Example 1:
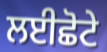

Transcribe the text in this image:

ਲਈਛੋਟੇ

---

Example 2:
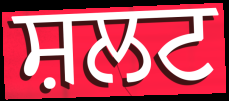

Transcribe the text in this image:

ਸ਼ਲਟ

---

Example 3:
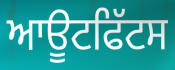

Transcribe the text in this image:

ਆਊਟਫਿੱਟਸ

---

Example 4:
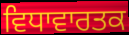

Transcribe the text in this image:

ਵਿਧਾਵਾਰਤਕ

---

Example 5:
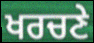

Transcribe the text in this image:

ਖਰਚਣੇ